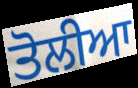
ਤੋਲੀਆ